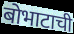
बोभाटाची